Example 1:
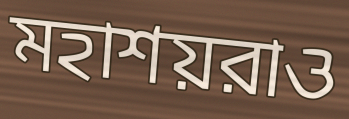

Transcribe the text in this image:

মহাশয়রাও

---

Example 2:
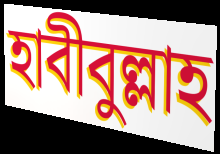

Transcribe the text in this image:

হাবীবুল্লাহ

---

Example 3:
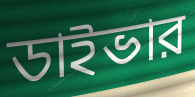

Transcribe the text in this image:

ডাইভার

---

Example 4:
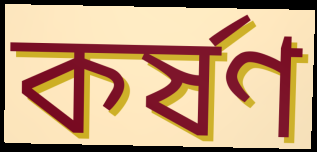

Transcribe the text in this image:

কর্ষণ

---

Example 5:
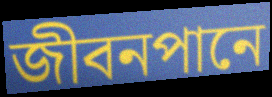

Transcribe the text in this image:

জীবনপানে